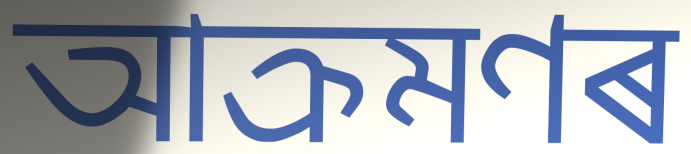
আক্ৰমণৰ